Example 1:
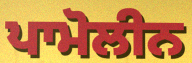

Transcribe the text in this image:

ਪਾਮੋਲੀਨ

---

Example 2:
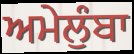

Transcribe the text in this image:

ਅਮੇਲੁੰਬਾ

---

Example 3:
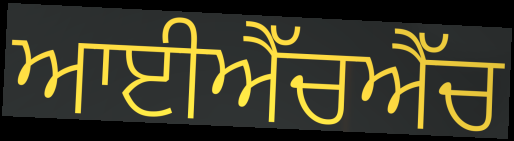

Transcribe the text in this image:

ਆਈਐੱਚਐੱਚ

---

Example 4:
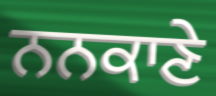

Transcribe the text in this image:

ਨਨਕਾਣੇ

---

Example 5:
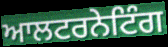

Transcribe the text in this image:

ਆਲਟਰਨੇਟਿੰਗ